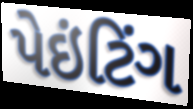
પેઇંટિંગ